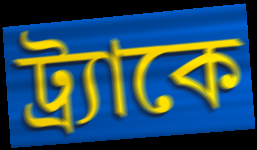
ট্র্যাকে